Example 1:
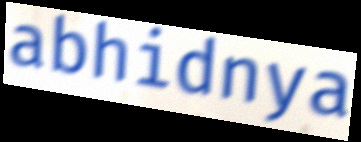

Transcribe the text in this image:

abhidnya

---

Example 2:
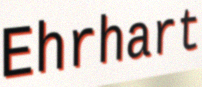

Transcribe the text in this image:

Ehrhart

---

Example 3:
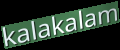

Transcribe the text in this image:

kalakalam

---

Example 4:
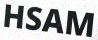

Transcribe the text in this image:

HSAM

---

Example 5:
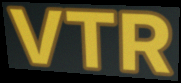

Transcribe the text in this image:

VTR